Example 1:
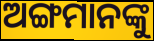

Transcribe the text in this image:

ଅଙ୍ଗମାନଙ୍କୁ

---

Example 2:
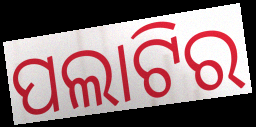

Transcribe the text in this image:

ପଲାଟିର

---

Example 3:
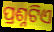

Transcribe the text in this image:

ପ୍ରଶ୍ନଟିଏ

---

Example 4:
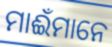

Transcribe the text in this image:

ମାଈଁମାନେ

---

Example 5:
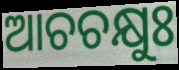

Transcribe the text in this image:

ଆଚଚକ୍ଷୁଃ